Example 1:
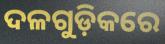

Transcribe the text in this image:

ଦଳଗୁଡ଼ିକରେ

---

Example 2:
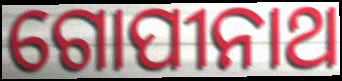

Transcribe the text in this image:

ଗୋପୀନାଥ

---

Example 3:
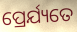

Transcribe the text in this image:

ପ୍ରେର୍ଯ୍ୟତେ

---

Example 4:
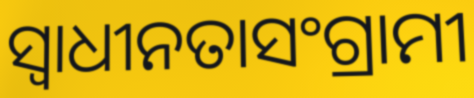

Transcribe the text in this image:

ସ୍ଵାଧୀନତାସଂଗ୍ରାମୀ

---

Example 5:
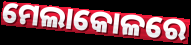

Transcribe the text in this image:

ମେଲାକୋଳରେ